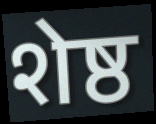
शेष्ठ